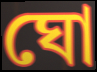
ঘো